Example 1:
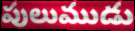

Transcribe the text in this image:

పులుముడు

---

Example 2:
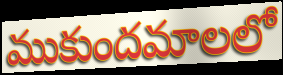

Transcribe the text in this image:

ముకుందమాలలో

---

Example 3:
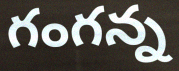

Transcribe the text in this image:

గంగన్న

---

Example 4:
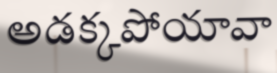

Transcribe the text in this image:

అడక్కపోయావా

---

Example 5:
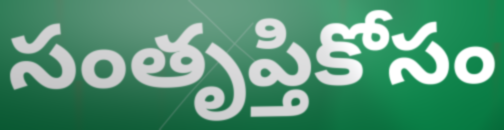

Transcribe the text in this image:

సంతృప్తికోసం